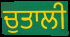
ਚੁਤਾਲੀ